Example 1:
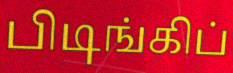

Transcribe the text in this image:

பிடிங்கிப்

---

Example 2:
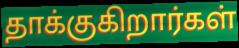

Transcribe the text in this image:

தாக்குகிறார்கள்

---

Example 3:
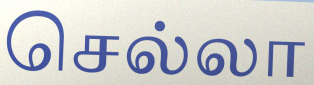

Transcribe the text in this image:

செல்லா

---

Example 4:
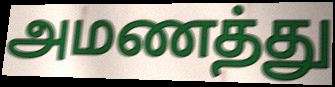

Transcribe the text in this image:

அமணத்து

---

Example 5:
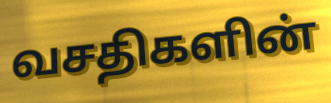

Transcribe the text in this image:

வசதிகளின்